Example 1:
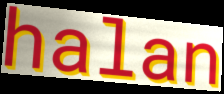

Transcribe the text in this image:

halan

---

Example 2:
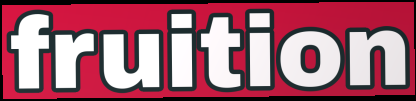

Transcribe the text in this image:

fruition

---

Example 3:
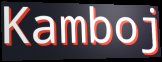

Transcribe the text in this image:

Kamboj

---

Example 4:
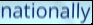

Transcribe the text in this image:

nationally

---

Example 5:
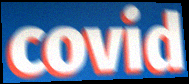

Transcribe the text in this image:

covid